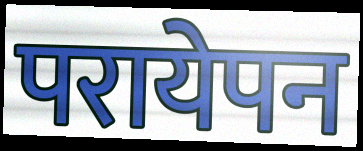
परायेपन